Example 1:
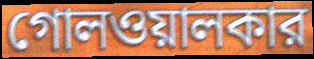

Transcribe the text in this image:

গোলওয়ালকার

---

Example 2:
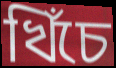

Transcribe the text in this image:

খিঁচে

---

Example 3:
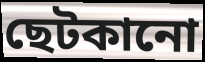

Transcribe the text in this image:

ছেটকানো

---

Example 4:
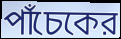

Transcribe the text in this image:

পাঁচেকের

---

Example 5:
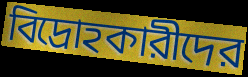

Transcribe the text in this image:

বিদ্রোহকারীদের